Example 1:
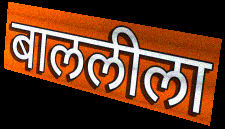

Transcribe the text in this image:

बाललीला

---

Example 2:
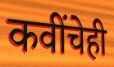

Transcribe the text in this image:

कवींचेही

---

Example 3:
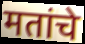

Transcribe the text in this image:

मतांचे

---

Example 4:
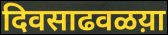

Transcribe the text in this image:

दिवसाढवळय़ा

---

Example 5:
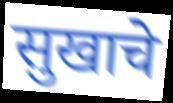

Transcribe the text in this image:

सुखाचे